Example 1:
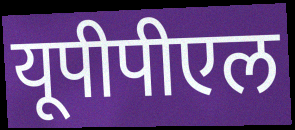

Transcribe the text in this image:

यूपीपीएल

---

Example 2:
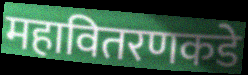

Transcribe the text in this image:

महावितरणकडे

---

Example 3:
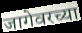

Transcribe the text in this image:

जागेवरच्या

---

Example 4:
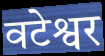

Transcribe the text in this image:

वटेश्वर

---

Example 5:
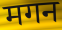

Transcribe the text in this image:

मगन